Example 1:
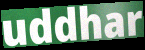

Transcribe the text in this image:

uddhar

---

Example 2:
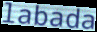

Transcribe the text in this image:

labada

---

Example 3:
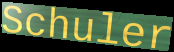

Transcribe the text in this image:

Schuler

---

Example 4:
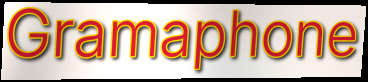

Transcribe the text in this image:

Gramaphone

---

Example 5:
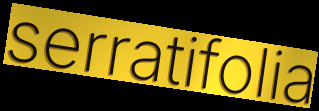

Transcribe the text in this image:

serratifolia